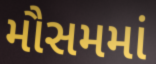
મૌસમમાં